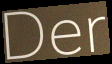
Der